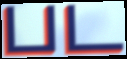
பட